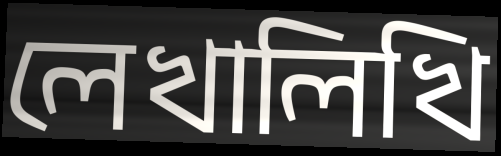
লেখালিখি